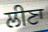
ਲੀਣਾ